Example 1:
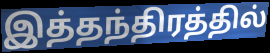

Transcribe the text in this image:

இத்தந்திரத்தில்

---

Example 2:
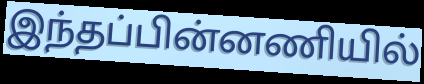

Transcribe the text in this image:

இந்தப்பின்னணியில்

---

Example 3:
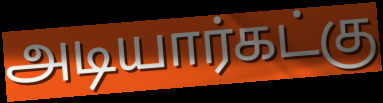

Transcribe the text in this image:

அடியார்கட்கு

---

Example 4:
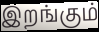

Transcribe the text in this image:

இறங்கும்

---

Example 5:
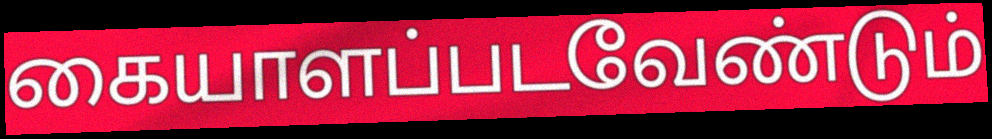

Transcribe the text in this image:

கையாளப்படவேண்டும்